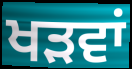
ਖੜਵਾਂ